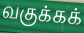
வகுக்கக்